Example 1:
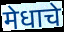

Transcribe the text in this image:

मेधाचे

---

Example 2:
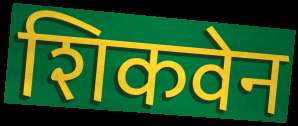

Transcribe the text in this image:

शिकवेन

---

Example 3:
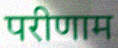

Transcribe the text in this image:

परीणाम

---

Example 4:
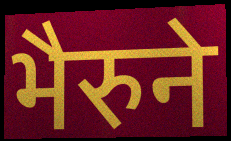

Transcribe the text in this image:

भैरुने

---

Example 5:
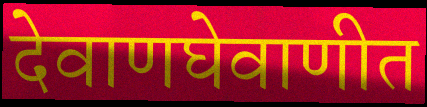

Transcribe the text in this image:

देवाणघेवाणीत